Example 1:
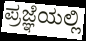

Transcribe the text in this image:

ಪ್ರಜ್ಞೆಯಲ್ಲಿ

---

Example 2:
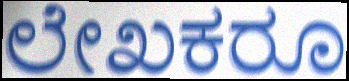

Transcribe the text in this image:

ಲೇಖಕರೂ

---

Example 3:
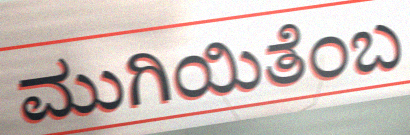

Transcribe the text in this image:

ಮುಗಿಯಿತೆಂಬ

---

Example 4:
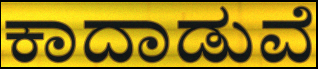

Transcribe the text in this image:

ಕಾದಾಡುವೆ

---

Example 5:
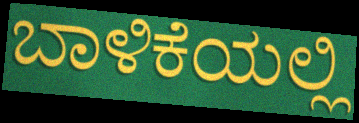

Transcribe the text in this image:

ಬಾಳಿಕೆಯಲ್ಲಿ